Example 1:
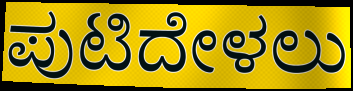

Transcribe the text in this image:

ಪುಟಿದೇಳಲು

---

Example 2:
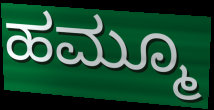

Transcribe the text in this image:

ಹಮ್ಮೂ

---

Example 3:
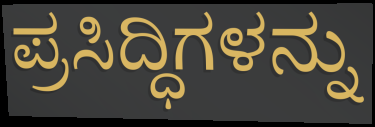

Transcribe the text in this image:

ಪ್ರಸಿದ್ಧಿಗಳನ್ನು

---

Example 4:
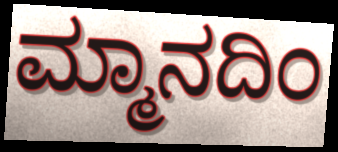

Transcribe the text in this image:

ಮ್ಮಾನದಿಂ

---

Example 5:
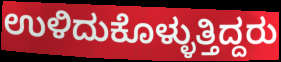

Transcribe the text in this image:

ಉಳಿದುಕೊಳ್ಳುತ್ತಿದ್ದರು